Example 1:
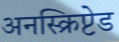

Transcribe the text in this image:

अनस्क्रिप्टेड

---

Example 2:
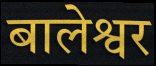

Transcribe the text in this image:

बालेश्वर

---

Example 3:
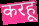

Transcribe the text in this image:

करहू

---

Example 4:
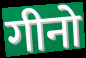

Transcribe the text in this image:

गीनो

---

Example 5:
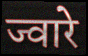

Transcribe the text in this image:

ज्वारे